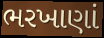
ભરખાણાં